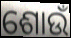
ଶୋଉଁ